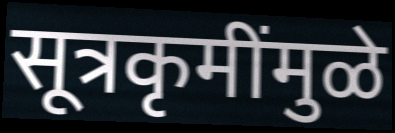
सूत्रकृमींमुळे